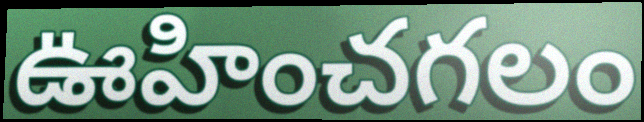
ఊహించగలం